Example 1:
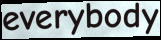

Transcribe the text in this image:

everybody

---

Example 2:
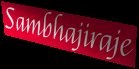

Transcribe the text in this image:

Sambhajiraje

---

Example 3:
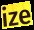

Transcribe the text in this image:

ize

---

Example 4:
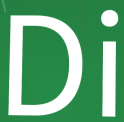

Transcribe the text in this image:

Di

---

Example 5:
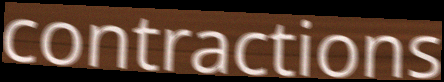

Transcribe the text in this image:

contractions